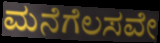
ಮನೆಗೆಲಸವೇ